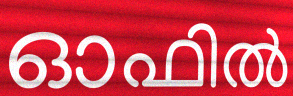
ഓഫിൽ